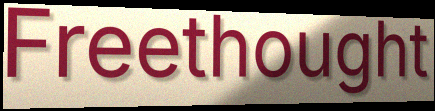
Freethought